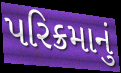
પરિક્રમાનું